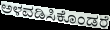
ಅಳವಡಿಸಿಕೊಂಡರೆ